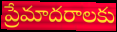
ప్రేమాదరాలకు